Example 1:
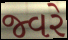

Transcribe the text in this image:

જ્વરે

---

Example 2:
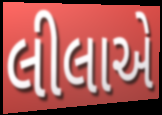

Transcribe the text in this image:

લીલાએ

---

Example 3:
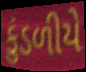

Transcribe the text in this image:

કુંડળીયે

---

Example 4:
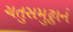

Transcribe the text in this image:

ચતુસમુટ્ઠાનં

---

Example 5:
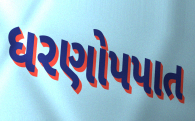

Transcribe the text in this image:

ધરણોપપાત